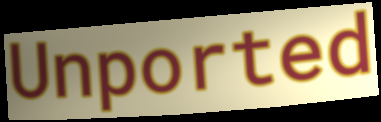
Unported